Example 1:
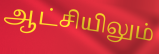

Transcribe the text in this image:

ஆட்சியிலும்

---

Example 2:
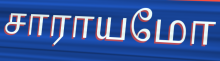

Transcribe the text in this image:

சாராயமோ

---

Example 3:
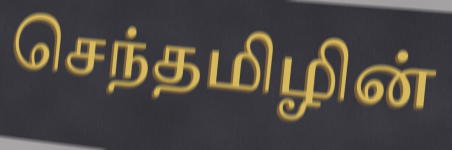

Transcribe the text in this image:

செந்தமிழின்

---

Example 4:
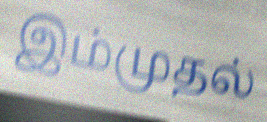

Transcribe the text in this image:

இம்முதல்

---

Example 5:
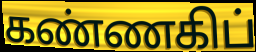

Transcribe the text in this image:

கண்ணகிப்